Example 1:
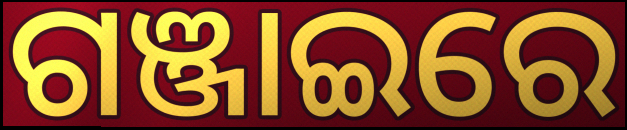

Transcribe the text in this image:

ଗଞ୍ଜାଇରେ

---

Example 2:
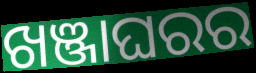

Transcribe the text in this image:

ଖଞ୍ଜାଘରର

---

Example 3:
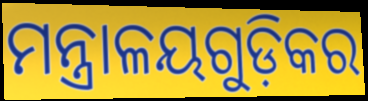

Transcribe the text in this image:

ମନ୍ତ୍ରାଳୟଗୁଡ଼ିକର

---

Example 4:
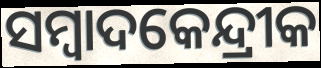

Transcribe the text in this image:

ସମ୍ୱାଦକେନ୍ଦ୍ରୀକ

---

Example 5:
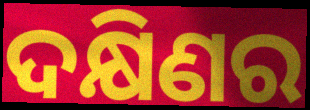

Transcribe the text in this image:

ଦକ୍ଷିଣର